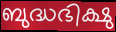
ബുദ്ധഭിക്ഷു